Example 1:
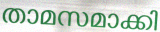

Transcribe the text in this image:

താമസമാക്കി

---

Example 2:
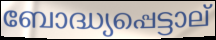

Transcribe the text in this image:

ബോദ്ധ്യപ്പെട്ടാല്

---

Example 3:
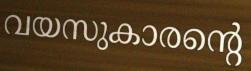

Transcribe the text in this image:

വയസുകാരന്റെ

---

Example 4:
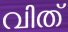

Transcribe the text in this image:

വിത്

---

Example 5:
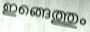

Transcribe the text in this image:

ഇങ്ങെത്തും